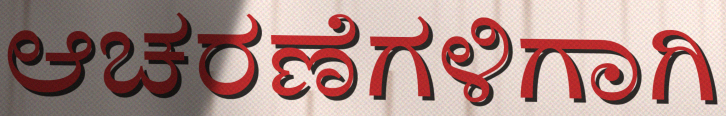
ಆಚರಣೆಗಳಿಗಾಗಿ